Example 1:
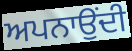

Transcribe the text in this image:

ਅਪਨਾਉਂਦੀ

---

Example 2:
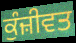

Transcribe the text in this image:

ਕੁੰਜ਼ੀਵਤ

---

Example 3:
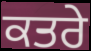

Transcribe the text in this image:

ਕਤਰੇ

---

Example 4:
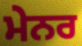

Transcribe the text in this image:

ਮੇਨਰ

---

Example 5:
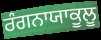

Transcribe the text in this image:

ਰੰਗਨਾਯਾਕੂਲੂ